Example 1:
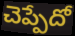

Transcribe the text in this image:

చెప్పేదో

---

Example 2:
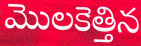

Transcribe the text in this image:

మొలకెత్తిన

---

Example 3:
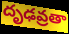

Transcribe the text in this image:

దృఢవ్రతా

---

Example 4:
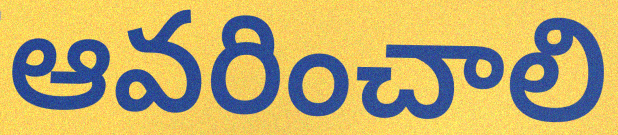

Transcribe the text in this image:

ఆవరించాలి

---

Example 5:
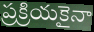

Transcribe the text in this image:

ప్రక్రియకైనా